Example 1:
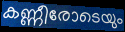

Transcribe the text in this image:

കണ്ണീരോടെയും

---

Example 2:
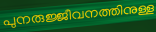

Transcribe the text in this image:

പുനരുജ്ജീവനത്തിനുള്ള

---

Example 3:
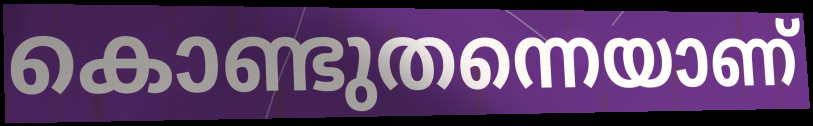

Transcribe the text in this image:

കൊണ്ടുതന്നെയാണ്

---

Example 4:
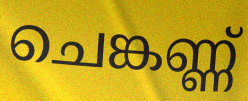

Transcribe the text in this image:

ചെങ്കണ്ണ്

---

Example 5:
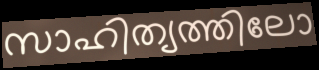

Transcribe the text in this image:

സാഹിത്യത്തിലോ